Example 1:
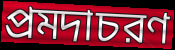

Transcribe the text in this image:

প্রমদাচরণ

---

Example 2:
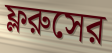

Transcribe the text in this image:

ফ্লরুসের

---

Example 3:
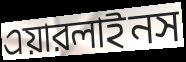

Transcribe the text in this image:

এয়ারলাইনস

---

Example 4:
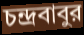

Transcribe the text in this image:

চন্দ্রবাবুর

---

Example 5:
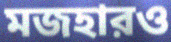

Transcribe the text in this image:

মজহারও